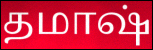
தமாஷ்